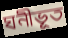
ঘনীভূত